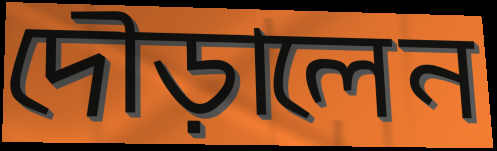
দৌড়ালেন